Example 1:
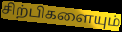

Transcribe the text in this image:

சிற்பிகளையும்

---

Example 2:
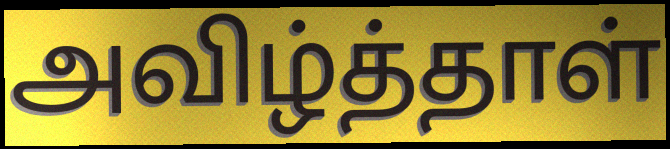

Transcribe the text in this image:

அவிழ்த்தாள்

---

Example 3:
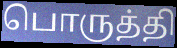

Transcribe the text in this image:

பொருத்தி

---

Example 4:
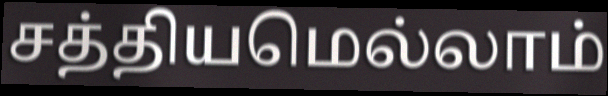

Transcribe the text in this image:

சத்தியமெல்லாம்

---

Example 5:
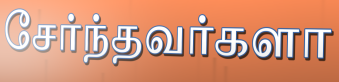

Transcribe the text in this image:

சேர்ந்தவர்களா